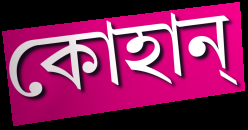
কোহান্